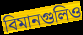
বিমানগুলিও